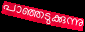
പാഞ്ഞടുക്കുന്നു